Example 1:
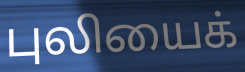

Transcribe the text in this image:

புலியைக்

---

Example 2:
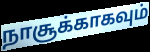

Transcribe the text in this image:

நாசூக்காகவும்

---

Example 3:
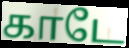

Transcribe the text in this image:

காடே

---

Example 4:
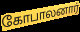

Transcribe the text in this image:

கோபாலனார்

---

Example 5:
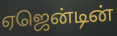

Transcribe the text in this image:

ஏஜென்டின்